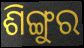
ଶିଙ୍ଗୁର